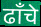
ढाँचे